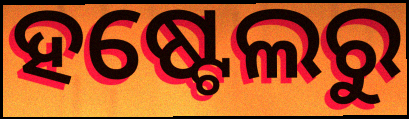
ହଷ୍ଟେଲରୁ